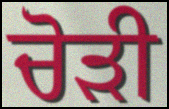
ਚੋੜੀ